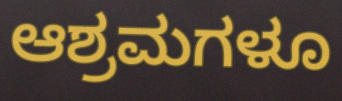
ಆಶ್ರಮಗಳೂ